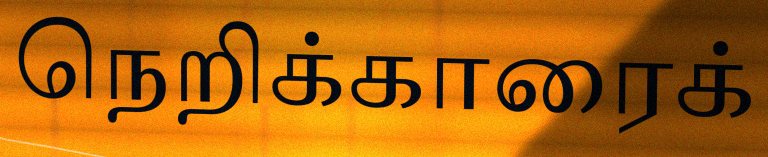
நெறிக்காரைக்